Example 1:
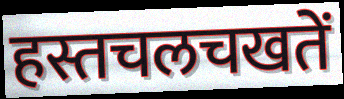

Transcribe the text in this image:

हस्तचलचखतें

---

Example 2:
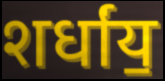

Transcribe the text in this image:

शर्धा॑य॒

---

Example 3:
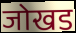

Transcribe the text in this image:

जोखड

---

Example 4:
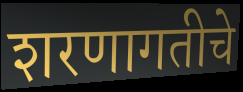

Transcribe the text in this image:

शरणागतीचे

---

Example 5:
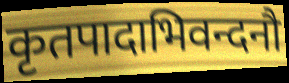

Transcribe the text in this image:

कृतपादाभिवन्दनौ